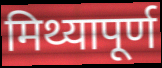
मिथ्यापूर्ण